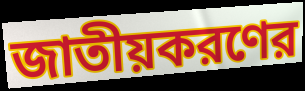
জাতীয়করণের